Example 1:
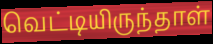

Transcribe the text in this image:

வெட்டியிருந்தாள்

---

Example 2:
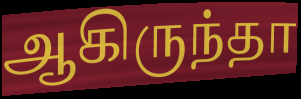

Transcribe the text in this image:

ஆகிருந்தா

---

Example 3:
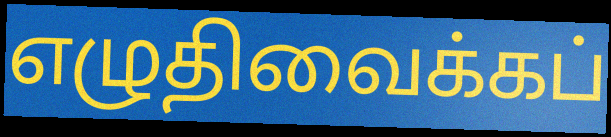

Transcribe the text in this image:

எழுதிவைக்கப்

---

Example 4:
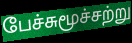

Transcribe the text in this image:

பேச்சுமூச்சற்று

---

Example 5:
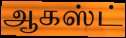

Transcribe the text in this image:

ஆகஸ்ட்